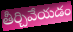
తీర్చివేయడం